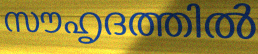
സൗഹൃദത്തിൽ